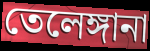
তেলেঙ্গানা